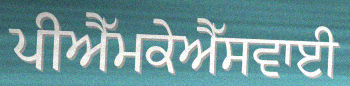
ਪੀਐੱਮਕੇਐੱਸਵਾਈ